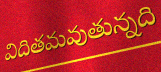
విదితమవుతున్నది